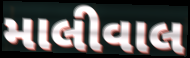
માલીવાલ